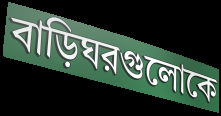
বাড়িঘরগুলোকে